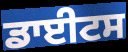
ਡਾਈਟਸ